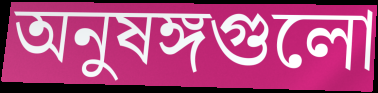
অনুষঙ্গগুলো